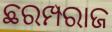
ଛରମ୍ପରାଜ